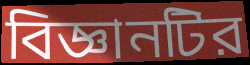
বিজ্ঞানটির